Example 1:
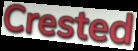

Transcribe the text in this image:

Crested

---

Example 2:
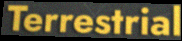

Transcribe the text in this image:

Terrestrial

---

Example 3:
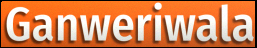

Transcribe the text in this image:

Ganweriwala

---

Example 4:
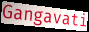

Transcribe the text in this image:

Gangavati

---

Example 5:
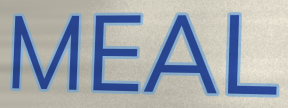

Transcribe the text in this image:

MEAL